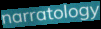
narratology